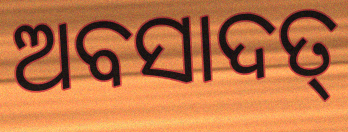
ଅବସାଦତ୍